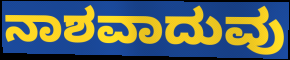
ನಾಶವಾದುವು